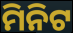
ମିନିଟ